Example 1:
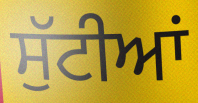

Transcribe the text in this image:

ਸੁੱਟੀਆਂ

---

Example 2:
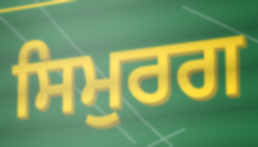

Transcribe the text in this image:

ਸਿਮੁਰਗ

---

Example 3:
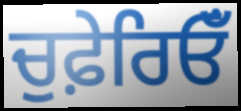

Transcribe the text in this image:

ਚੁਫ਼ੇਰਿਓਁ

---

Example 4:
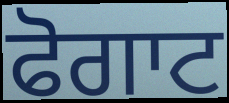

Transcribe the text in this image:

ਫੋਗਾਟ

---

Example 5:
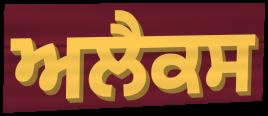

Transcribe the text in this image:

ਅਲੈਕਸ